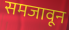
समजावून